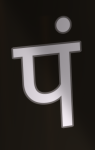
पं